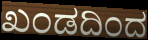
ಖಂಡದಿಂದ